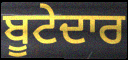
ਬੂਟੇਦਾਰ